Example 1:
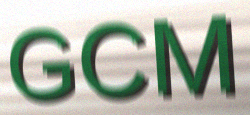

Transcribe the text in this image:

GCM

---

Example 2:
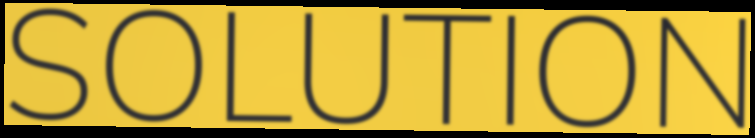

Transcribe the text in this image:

SOLUTION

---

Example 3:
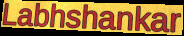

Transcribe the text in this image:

Labhshankar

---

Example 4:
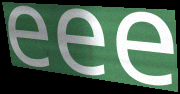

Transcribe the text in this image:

eee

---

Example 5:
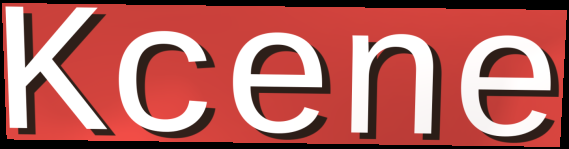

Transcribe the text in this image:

Kcene